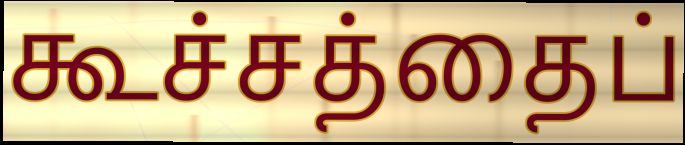
கூச்சத்தைப்